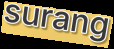
surang